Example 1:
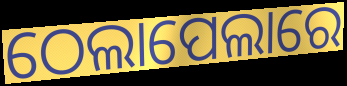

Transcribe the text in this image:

ଠେଲାପେଲାରେ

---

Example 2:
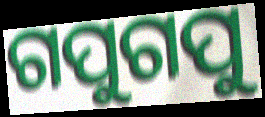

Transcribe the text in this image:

ଗପୁଗପୁ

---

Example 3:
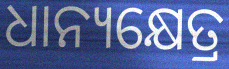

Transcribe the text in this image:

ଧାନ୍ୟକ୍ଷେତ୍ର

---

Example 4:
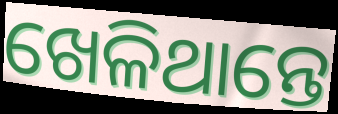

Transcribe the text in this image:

ଖେଳିଥାନ୍ତେ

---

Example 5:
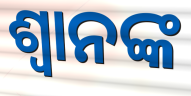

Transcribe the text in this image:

ଶ୍ବାନଙ୍କ